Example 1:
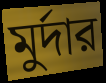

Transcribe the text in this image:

মুর্দার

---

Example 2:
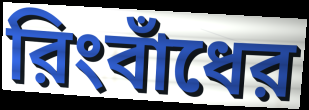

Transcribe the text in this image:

রিংবাঁধের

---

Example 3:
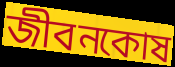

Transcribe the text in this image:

জীবনকোষ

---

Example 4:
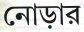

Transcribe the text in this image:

নোড়ার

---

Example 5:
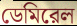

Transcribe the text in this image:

ডেমিরেল